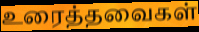
உரைத்தவைகள்